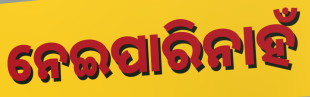
ନେଇପାରିନାହଁ